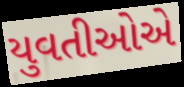
યુવતીઓએ